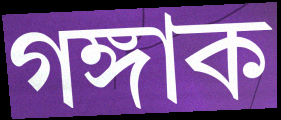
গঙ্গাক